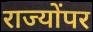
राज्योंपर